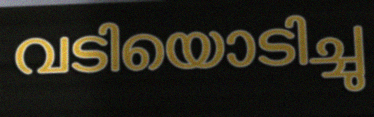
വടിയൊടിച്ചു